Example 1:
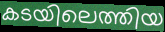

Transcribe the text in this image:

കടയിലെത്തിയ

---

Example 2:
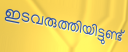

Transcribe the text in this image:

ഇടവരുത്തിയിട്ടുണ്ട്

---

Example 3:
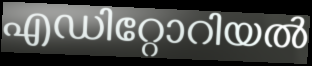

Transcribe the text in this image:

എഡിറ്റോറിയൽ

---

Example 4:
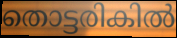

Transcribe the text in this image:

തൊട്ടരികിൽ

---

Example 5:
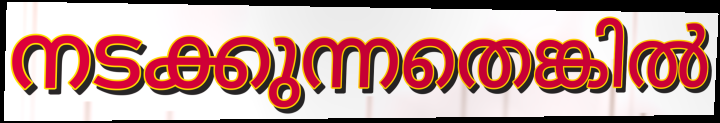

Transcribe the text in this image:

നടക്കുന്നതെങ്കിൽ